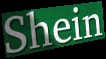
Shein